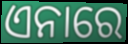
ଏନାରେ